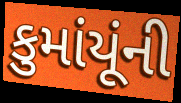
કુમાંયૂંની